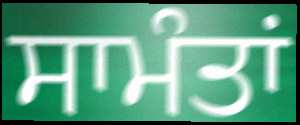
ਸਾਮੰਤਾਂ